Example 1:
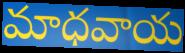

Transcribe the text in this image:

మాధవాయ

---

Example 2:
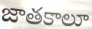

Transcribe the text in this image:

జాతకాలూ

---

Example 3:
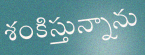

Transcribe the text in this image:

శంకిస్తున్నాను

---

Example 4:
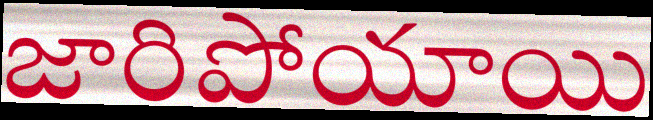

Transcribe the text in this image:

జారిపోయాయి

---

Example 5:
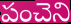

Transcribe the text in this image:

పంచెని